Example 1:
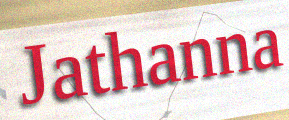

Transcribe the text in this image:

Jathanna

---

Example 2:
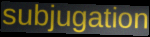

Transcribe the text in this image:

subjugation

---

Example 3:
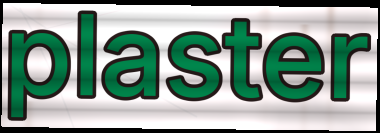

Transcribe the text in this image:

plaster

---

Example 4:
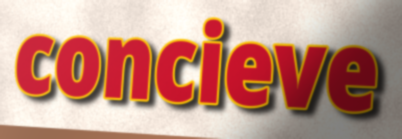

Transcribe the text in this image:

concieve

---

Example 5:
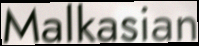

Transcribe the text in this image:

Malkasian